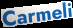
Carmeli